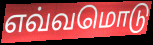
எவ்வமொடு